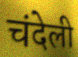
चंदेली